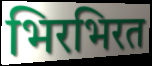
भिरभिरत